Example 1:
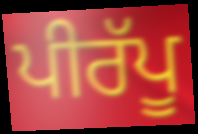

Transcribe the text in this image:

ਪੀਰੱਪੂ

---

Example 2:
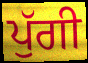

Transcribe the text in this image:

ਪੁੱਗੀ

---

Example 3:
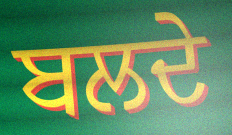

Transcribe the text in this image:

ਬਲਦੇ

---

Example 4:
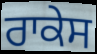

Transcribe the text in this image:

ਰਾਕੇਸ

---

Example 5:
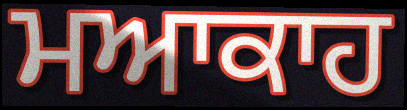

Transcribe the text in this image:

ਮਆਕਾਹ